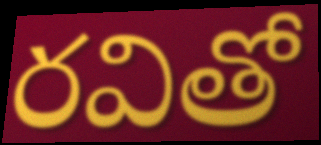
రవితో